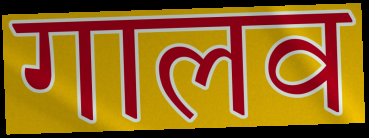
गालव